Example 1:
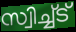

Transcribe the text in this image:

സ്വിച്ച്ട്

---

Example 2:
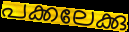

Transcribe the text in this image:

പക്കലേക്കു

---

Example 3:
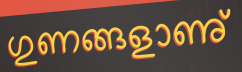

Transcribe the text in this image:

ഗുണങ്ങളാണു്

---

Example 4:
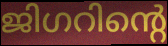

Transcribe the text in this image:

ജിഗറിന്റെ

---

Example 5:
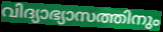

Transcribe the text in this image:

വിദ്യാഭ്യാസത്തിനും